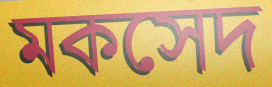
মকসেদ